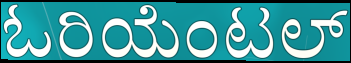
ಓರಿಯೆಂಟಲ್